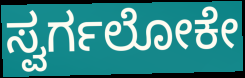
ಸ್ವರ್ಗಲೋಕೇ